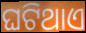
ଘଟିଥାଏ